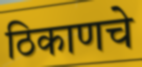
ठिकाणचे